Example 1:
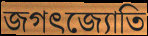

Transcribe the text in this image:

জগৎজ্যোতি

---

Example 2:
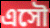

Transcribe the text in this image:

এসৌ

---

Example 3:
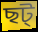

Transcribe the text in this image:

ছট্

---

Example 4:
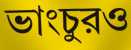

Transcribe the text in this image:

ভাংচুরও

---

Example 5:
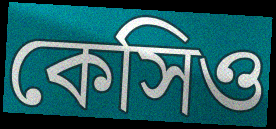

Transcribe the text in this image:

কেসিও